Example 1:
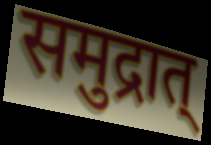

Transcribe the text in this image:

समुद्रात्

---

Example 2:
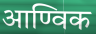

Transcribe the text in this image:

आण्विक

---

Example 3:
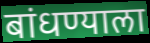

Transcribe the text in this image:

बांधण्याला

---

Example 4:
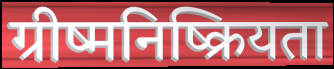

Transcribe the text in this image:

ग्रीष्मनिष्क्रियता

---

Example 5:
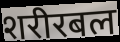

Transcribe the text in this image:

शरीरबल